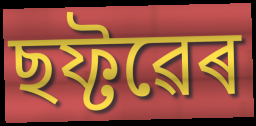
ছফ্টৱেৰ